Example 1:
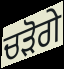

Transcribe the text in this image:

ਚੜੋਗੇ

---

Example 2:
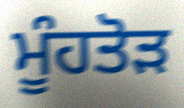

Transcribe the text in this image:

ਮੂੰਹਤੋੜ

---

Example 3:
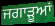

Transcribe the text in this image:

ਜਗਾੜੂਆਂ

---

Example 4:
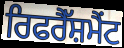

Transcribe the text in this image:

ਰਿਫਰੈੱਸ਼ਮੈਂਟ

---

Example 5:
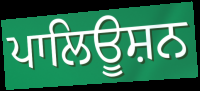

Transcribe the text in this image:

ਪਾਲਿਊਸ਼ਨ